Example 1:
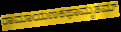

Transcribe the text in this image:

ರಾಮಾಯಣಕಥಾಮೃತಮ್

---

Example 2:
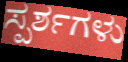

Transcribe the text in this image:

ಸ್ಪರ್ಶಗಳು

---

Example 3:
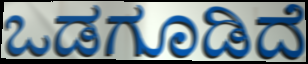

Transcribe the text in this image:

ಒಡಗೂಡಿದೆ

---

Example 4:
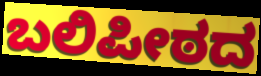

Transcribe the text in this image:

ಬಲಿಪೀಠದ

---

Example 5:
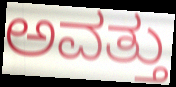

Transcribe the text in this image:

ಅವತ್ತು